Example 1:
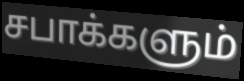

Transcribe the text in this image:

சபாக்களும்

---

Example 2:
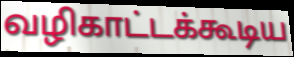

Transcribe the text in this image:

வழிகாட்டக்கூடிய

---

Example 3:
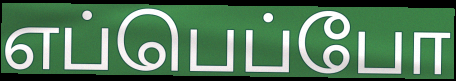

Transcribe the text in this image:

எப்பெப்போ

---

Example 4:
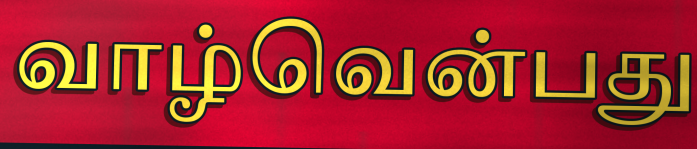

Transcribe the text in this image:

வாழ்வென்பது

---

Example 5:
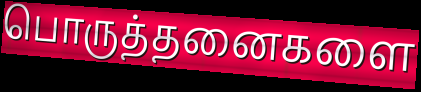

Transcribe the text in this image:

பொருத்தனைகளை